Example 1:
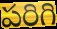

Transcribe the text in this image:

పరిగి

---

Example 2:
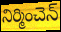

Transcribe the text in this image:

నిర్మించెన్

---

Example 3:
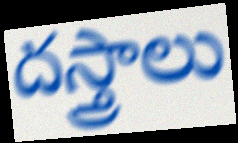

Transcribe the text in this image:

దస్త్రాలు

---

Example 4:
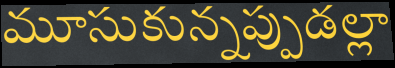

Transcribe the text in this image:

మూసుకున్నప్పుడల్లా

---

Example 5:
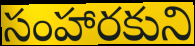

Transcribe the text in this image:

సంహారకుని